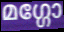
മഗ്ഗോ